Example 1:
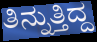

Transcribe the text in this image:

ತಿನ್ನುತ್ತಿದ್ದ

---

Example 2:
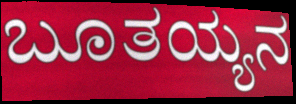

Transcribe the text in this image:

ಬೂತಯ್ಯನ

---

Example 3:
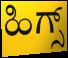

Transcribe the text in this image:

ಹಿಗ್ಸ್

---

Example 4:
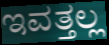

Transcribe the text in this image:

ಇವತ್ತಲ್ಲ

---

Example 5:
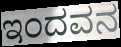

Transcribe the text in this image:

ಇಂದವನ